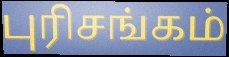
புரிசங்கம்